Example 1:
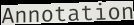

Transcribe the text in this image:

Annotation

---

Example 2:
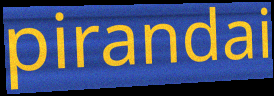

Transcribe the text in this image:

pirandai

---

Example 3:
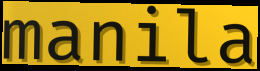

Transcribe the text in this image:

manila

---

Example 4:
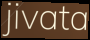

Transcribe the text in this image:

jivata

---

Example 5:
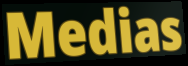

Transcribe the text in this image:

Medias